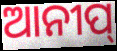
ଆନୀପ୍